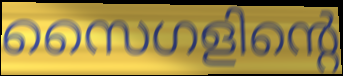
സൈഗളിന്റെ